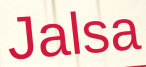
Jalsa